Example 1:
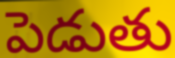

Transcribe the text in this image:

పెడుతు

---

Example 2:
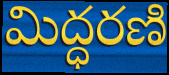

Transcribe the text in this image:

మిద్ధరణి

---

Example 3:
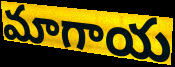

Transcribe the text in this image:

మాగాయ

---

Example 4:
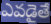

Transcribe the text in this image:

ఎవడైతే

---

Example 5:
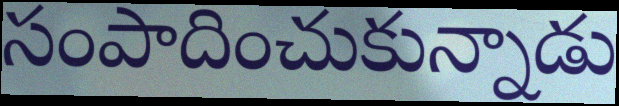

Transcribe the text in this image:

సంపాదించుకున్నాడు